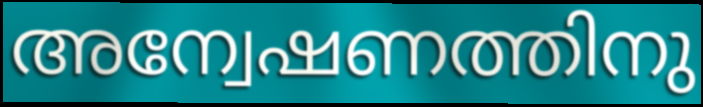
അന്വേഷണത്തിനു